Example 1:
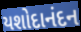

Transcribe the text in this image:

યશોદાનંદન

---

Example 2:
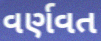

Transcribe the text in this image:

વર્ણવત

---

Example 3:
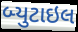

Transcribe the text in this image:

બ્યુટાઇલ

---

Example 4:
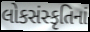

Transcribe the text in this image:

લોકસંસ્કૃતિનાં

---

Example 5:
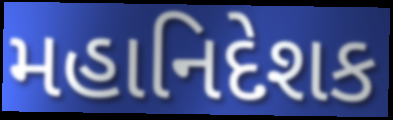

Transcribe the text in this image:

મહાનિદેશક